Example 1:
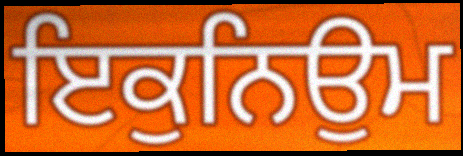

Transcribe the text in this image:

ਇਕੁਨਿਉਮ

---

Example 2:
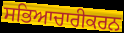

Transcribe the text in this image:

ਸਭਿਆਚਾਰੀਕਰਨ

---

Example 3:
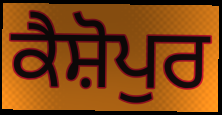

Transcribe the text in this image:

ਕੈਸ਼ੋਪੁਰ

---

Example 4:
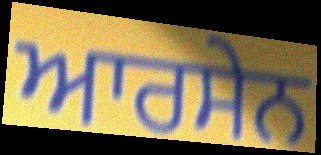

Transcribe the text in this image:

ਆਰਸੇਨ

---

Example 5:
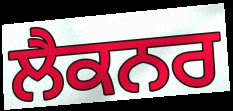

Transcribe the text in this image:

ਲੈਕਨਰ